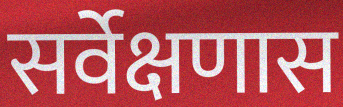
सर्वेक्षणास